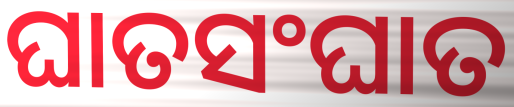
ଘାତସଂଘାତ